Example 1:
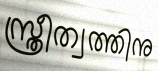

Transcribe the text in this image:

സ്ത്രീത്വത്തിനു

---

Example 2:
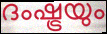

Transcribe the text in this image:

ദംഷ്ട്രയും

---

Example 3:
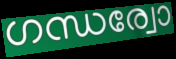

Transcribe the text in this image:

ഗന്ധര്വോ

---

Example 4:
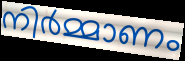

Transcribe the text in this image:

നിർമ്മാണം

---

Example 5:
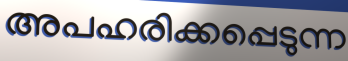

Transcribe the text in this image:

അപഹരിക്കപ്പെടുന്ന